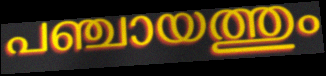
പഞ്ചായത്തും